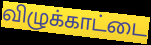
விழுக்காட்டை